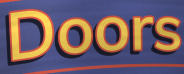
Doors